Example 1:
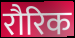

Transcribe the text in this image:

रौरिक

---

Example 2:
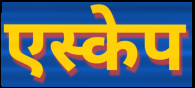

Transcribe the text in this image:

एस्केप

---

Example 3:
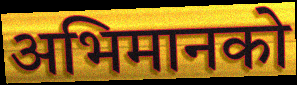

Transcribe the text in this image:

अभिमानको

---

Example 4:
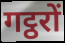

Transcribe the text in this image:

गट्ठरों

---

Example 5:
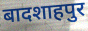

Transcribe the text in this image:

बादशाहपुर